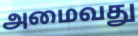
அமைவது